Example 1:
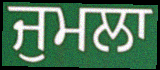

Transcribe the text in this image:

ਜੁਮਲਾ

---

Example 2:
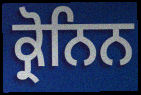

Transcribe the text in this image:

ਕ੍ਰੋਨਿਨ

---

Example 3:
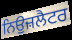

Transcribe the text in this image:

ਨਿਉਜ਼ਲੈਟਰ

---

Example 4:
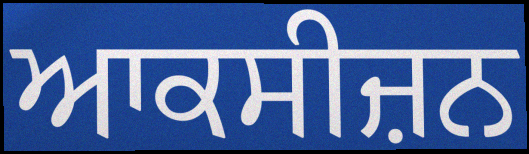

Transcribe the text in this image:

ਆਕਸੀਜ਼ਨ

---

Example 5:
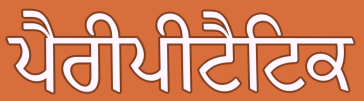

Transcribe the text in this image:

ਪੈਰੀਪੀਟੈਟਿਕ